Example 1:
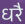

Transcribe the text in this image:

धरै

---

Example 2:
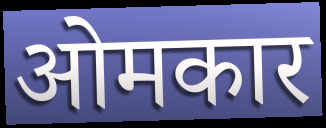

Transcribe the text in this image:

ओमकार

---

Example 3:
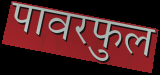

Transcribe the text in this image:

पावरफुल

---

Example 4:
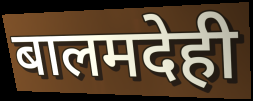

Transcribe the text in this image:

बालमदेही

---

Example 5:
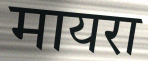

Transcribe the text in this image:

मायरा